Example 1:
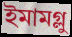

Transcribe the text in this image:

ইমামগ্লু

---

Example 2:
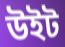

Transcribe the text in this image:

উইট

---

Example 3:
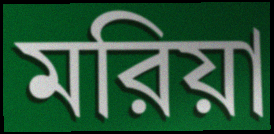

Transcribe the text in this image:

মরিয়া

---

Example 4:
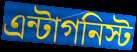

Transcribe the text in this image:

এন্টাগনিস্ট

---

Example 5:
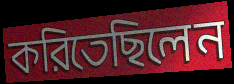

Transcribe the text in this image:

করিতেছিলেন